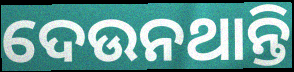
ଦେଉନଥାନ୍ତି